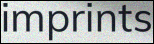
imprints